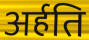
अर्हति